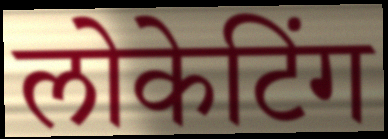
लोकेटिंग